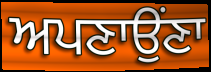
ਅਪਣਾਉਂਣਾ